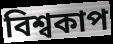
বিশ্বকাপ